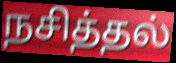
நசித்தல்